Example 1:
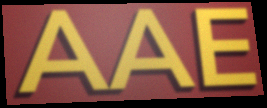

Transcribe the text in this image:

AAE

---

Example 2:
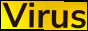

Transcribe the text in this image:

Virus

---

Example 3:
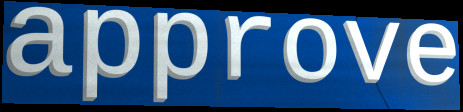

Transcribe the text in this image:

approve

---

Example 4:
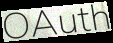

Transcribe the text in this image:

OAuth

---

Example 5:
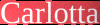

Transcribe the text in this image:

Carlotta